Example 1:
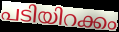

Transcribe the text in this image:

പടിയിറക്കം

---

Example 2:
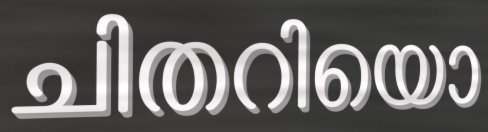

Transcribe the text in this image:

ചിതറിയൊ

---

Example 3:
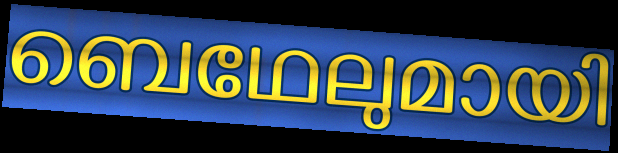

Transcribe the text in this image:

ബെഥേലുമായി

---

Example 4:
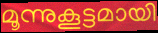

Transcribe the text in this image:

മൂന്നുകൂട്ടമായി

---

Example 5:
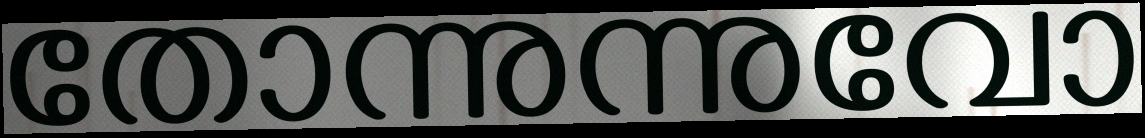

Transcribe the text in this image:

തോന്നുന്നുവോ